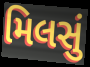
મિલસું